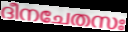
ദീനചേതസഃ